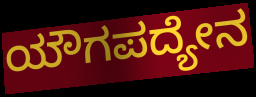
ಯೌಗಪದ್ಯೇನ